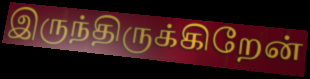
இருந்திருக்கிறேன்